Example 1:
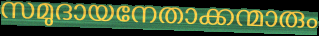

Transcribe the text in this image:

സമുദായനേതാക്കന്മാരും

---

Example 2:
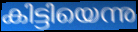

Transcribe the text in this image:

കിട്ടിയെന്നു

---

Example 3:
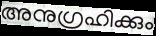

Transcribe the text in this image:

അനുഗ്രഹിക്കും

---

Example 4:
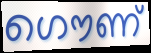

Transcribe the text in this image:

ഗൌണ്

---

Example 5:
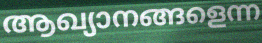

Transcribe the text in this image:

ആഖ്യാനങ്ങളെന്ന